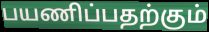
பயணிப்பதற்கும்